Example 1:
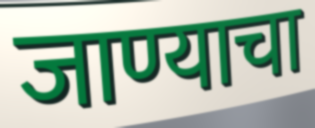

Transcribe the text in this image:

जाण्‍याचा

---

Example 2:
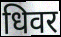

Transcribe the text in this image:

धिवर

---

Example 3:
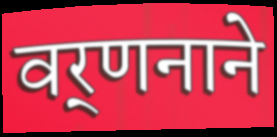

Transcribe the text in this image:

वर्णनाने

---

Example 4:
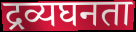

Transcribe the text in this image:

द्रव्यघनता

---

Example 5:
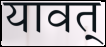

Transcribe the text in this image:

यावत्